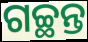
ଗଚ୍ଛନ୍ତ